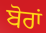
ਬੋਰਾਂ